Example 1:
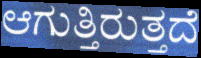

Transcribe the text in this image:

ಆಗುತ್ತಿರುತ್ತದೆ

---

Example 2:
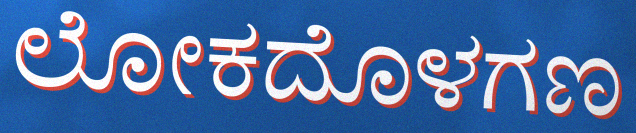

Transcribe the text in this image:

ಲೋಕದೊಳಗಣ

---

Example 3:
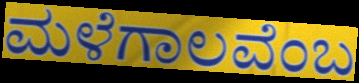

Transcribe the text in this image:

ಮಳೆಗಾಲವೆಂಬ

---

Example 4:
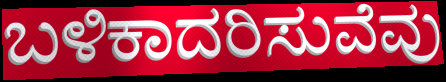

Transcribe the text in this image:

ಬಳಿಕಾದರಿಸುವೆವು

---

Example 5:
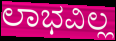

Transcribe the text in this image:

ಲಾಭವಿಲ್ಲ